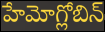
హేమోగ్లోబిన్